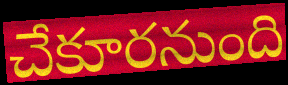
చేకూరనుంది